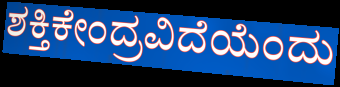
ಶಕ್ತಿಕೇಂದ್ರವಿದೆಯೆಂದು